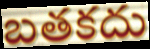
బతకదు